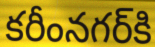
కరీంనగర్‌కి